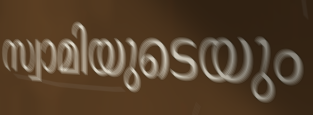
സ്വാമിയുടെയും